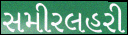
સમીરલહરી